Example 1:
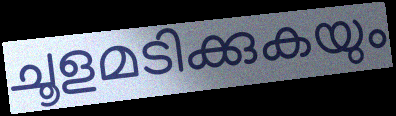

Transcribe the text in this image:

ചൂളമടിക്കുകയും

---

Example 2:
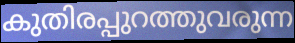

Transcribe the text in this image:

കുതിരപ്പുറത്തുവരുന്ന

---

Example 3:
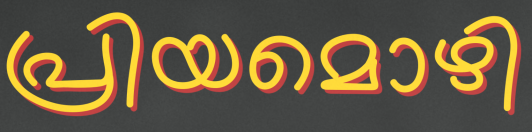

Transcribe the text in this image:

പ്രിയമൊഴി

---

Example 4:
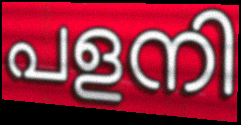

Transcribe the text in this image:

പളനി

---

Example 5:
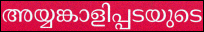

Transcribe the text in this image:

അയ്യങ്കാളിപ്പടയുടെ